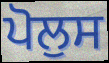
ਪੋਲੁਸ